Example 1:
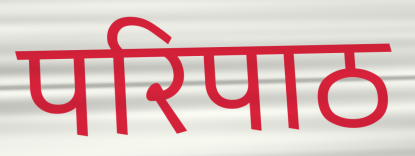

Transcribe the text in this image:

परिपाठ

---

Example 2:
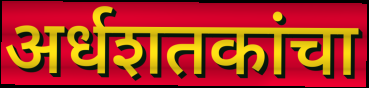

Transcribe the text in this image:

अर्धशतकांचा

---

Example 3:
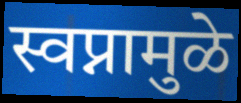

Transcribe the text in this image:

स्वप्नामुळे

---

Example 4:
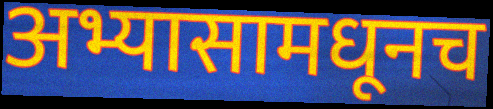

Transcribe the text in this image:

अभ्यासामधूनच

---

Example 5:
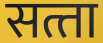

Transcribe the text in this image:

सत्‍ता